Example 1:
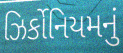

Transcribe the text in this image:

ઝિર્કોનિયમનું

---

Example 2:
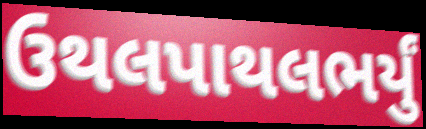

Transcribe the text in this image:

ઉથલપાથલભર્યું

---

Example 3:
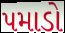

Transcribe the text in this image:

પમાડો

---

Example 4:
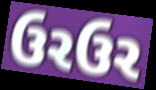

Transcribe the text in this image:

ઉરઉર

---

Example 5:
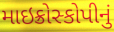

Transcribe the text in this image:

માઇક્રોસ્કોપીનું